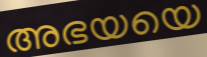
അഭയയെ